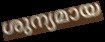
ശുന്യമായ